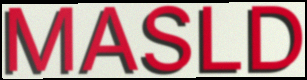
MASLD